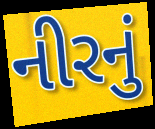
નીરનું